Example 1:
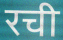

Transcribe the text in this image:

रची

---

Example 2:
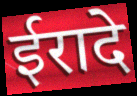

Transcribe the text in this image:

ईरादे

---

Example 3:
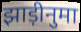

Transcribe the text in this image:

झाड़ीनुमा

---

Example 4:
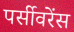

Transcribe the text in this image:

पर्सीवरेंस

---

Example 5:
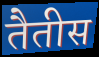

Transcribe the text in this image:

तैतीस